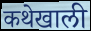
कथेखाली